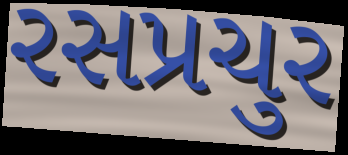
રસપ્રચુર